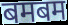
बमबम